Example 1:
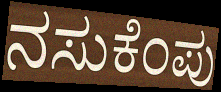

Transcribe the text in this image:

ನಸುಕೆಂಪು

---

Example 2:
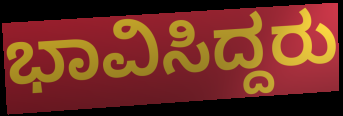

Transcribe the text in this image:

ಭಾವಿಸಿದ್ದರು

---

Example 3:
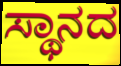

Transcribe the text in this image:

ಸ್ಥಾನದ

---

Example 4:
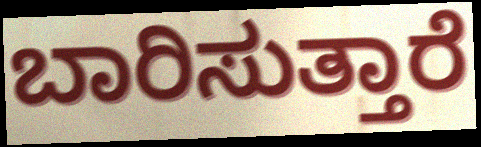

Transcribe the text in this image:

ಬಾರಿಸುತ್ತಾರೆ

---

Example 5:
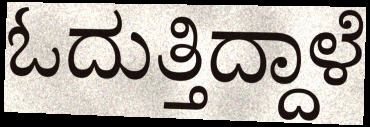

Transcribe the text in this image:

ಓದುತ್ತಿದ್ದಾಳೆ